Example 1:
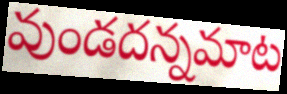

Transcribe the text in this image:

వుండదన్నమాట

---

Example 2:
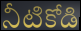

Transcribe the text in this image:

నీటికోడి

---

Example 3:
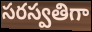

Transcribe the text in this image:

సరస్వతిగా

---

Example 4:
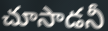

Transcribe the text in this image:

చూసాడనీ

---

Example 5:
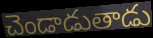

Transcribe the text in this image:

చెండాడుతాడు